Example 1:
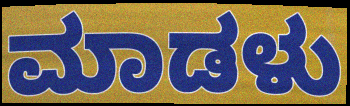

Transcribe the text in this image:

ಮಾಡಳು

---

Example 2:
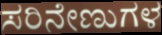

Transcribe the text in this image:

ಸರಿನೇಣುಗಳ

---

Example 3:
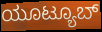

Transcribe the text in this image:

ಯೂಟ್ಯೂಬ್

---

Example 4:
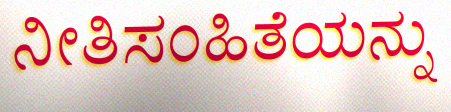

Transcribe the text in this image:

ನೀತಿಸಂಹಿತೆಯನ್ನು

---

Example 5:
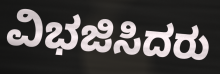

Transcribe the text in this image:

ವಿಭಜಿಸಿದರು